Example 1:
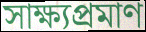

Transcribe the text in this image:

সাক্ষ্যপ্রমাণ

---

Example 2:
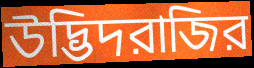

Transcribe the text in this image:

উদ্ভিদরাজির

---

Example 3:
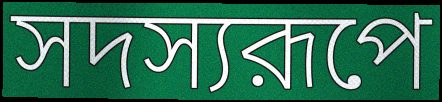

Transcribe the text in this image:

সদস্যরূপে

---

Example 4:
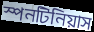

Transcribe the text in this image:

স্পনটিনিয়াস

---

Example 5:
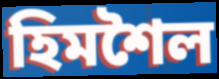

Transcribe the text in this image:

হিমশৈল